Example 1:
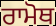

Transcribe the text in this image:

ਰਾਮੋਥ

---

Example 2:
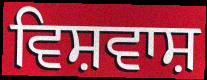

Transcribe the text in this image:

ਵਿਸ਼ਵਾਸ਼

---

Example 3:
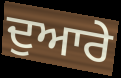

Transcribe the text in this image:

ਦੁਆਰੇ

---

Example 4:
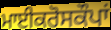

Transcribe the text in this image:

ਮਾਈਕਰੋਸਕੌਪਾਂ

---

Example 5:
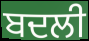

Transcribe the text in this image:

ਬਦਲੀ